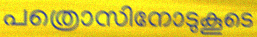
പത്രൊസിനോടുകൂടെ